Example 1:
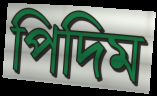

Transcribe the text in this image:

পিদিম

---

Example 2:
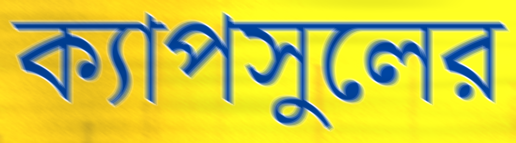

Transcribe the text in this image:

ক্যাপসুলের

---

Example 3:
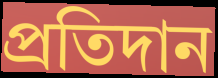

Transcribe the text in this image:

প্রতিদান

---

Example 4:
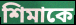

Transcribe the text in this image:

শিমাকে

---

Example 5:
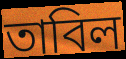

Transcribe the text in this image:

তাবিল